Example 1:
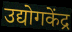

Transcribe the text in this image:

उद्योगकेंद्र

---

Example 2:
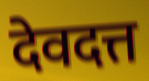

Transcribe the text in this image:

देवदत्त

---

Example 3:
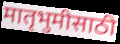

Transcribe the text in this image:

मातृभुमीसाठी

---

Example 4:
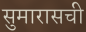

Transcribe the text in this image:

सुमारासची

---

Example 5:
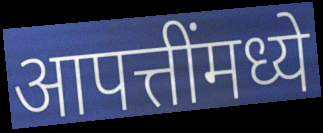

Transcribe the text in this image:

आपत्तींमध्ये